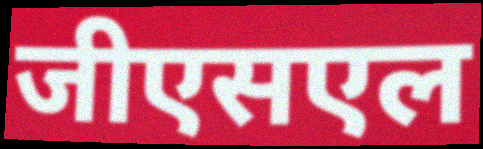
जीएसएल